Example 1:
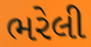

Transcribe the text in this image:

ભરેલી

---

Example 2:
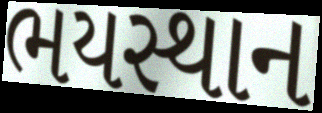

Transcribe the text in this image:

ભયસ્થાન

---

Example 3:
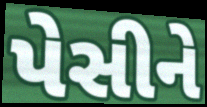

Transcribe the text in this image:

પેસીને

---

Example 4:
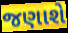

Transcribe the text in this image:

જણાશે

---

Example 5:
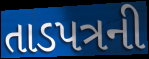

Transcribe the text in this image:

તાડપત્રની